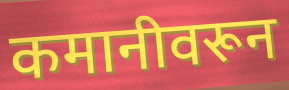
कमानीवरून